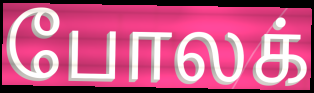
போலக்